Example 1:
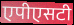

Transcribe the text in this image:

एपीएसटी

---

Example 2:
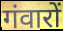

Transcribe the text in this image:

गंवारों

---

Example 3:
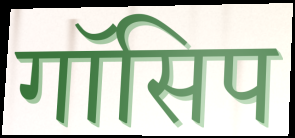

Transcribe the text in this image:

गॉसिप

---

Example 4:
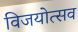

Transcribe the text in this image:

विजयोत्सव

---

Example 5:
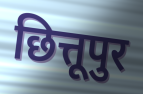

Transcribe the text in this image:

छित्तूपुर